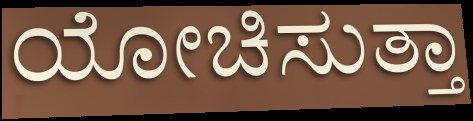
ಯೋಚಿಸುತ್ತಾ